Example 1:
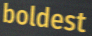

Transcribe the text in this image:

boldest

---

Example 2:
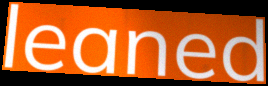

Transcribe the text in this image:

leaned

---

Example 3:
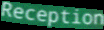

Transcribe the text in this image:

Reception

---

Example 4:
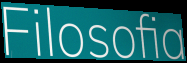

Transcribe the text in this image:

Filosofia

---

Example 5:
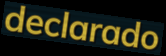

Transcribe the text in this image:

declarado